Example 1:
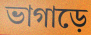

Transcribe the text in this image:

ভাগাড়ে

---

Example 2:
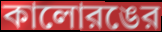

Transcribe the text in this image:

কালোরঙের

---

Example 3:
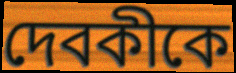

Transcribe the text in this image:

দেবকীকে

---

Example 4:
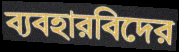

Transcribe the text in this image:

ব্যবহারবিদের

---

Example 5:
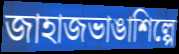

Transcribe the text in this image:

জাহাজভাঙাশিল্পে